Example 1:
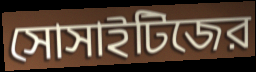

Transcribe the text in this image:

সোসাইটিজের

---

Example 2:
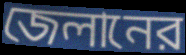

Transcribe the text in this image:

জেলানের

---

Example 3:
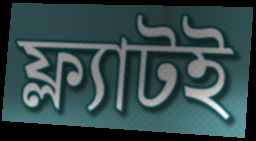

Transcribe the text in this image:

ফ্ল্যাটই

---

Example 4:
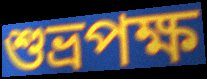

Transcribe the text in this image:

শুভ্রপক্ষ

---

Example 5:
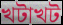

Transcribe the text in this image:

খটাখট